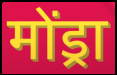
मोंड्रा